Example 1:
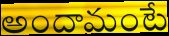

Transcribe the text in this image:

అందామంటే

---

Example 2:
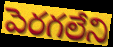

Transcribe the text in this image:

పెరగలేని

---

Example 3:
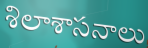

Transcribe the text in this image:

శిలాశాసనాలు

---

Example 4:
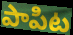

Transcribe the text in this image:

పాపిట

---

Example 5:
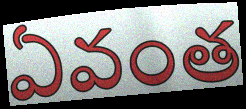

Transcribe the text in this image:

ఏవంత